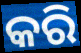
କରି